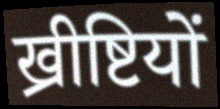
ख्रीष्टियों